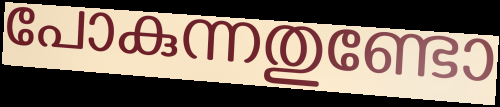
പോകുന്നതുണ്ടോ